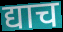
द्याच